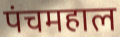
पंचमहाल